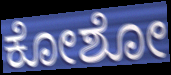
ಕೋಶೋ